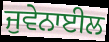
ਜੁਵੇਨਾਈਲ